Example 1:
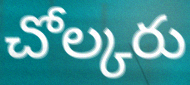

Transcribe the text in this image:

చోల్కరు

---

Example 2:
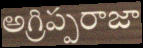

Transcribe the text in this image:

అగ్రిప్పరాజా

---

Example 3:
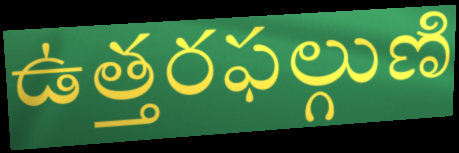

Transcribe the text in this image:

ఉత్తరఫల్గుణి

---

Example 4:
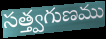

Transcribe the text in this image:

సత్త్వగుణము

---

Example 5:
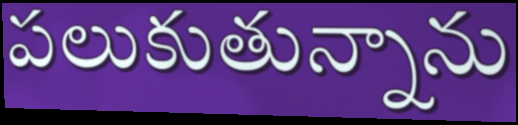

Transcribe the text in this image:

పలుకుతున్నాను